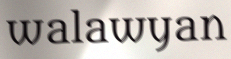
walawyan